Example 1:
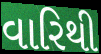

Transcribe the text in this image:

વારિથી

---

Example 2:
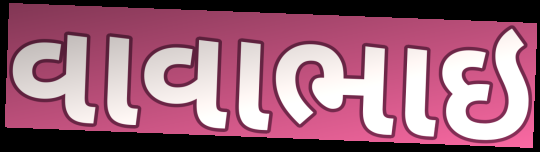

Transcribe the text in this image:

વાવાભાઇ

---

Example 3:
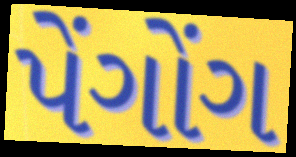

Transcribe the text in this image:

પેંગોંગ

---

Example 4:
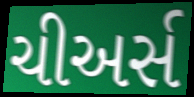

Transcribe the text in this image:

ચીઅર્સ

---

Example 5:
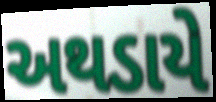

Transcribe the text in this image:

અથડાયે